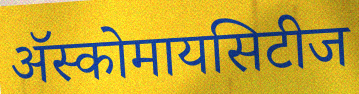
ॲस्कोमायसिटीज